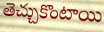
తెచ్చుకొంటాయి